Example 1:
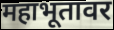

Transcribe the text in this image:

महाभूतावर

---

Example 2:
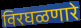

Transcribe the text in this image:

विरघळणारे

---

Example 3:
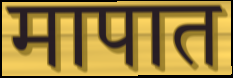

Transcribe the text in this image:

मापात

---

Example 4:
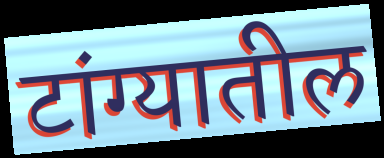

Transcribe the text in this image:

टांग्यातील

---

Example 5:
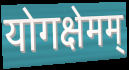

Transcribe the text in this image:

योगक्षेमम्